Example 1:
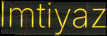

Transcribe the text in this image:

Imtiyaz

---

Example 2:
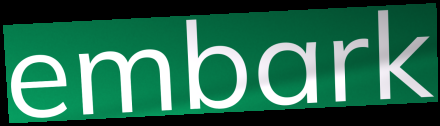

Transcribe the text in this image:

embark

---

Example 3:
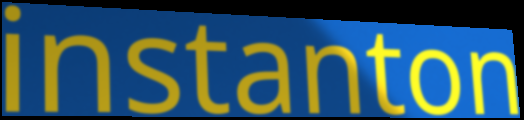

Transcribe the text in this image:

instanton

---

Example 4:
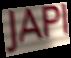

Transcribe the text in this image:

JAPI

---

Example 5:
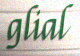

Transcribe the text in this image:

glial